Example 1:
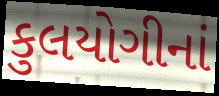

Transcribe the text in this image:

કુલયોગીનાં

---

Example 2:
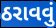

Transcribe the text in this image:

ઠરાવવું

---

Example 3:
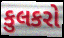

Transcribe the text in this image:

કુલકરો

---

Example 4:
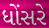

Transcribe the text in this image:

ધોંસરે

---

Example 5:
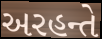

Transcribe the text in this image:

અરહન્તે